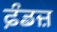
ਫ਼ੰਡਜ਼